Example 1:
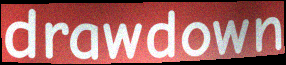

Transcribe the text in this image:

drawdown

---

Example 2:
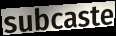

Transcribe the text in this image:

subcaste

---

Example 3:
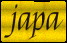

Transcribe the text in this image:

japa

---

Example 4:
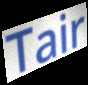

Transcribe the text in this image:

Tair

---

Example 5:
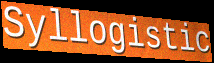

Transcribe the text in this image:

Syllogistic